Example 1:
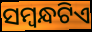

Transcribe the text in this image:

ସମ୍ବନ୍ଧଟିଏ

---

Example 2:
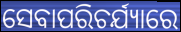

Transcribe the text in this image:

ସେବାପରିଚର୍ଯ୍ୟାରେ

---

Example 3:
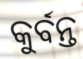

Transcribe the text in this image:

କୁର୍ବନ୍ତ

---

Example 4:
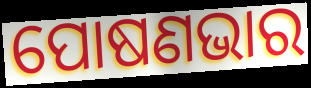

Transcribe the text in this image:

ପୋଷଣଭାର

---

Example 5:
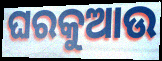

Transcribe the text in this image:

ଘରକୁଆଉ